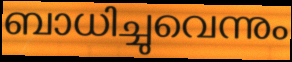
ബാധിച്ചുവെന്നും